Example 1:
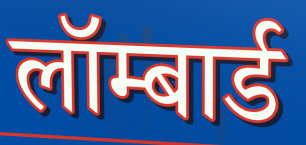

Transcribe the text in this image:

लॉम्बार्ड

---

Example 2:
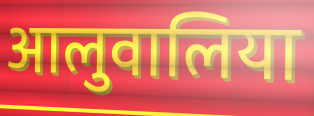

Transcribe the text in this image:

आलुवालिया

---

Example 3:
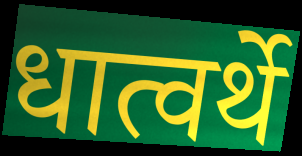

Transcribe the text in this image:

धात्वर्थे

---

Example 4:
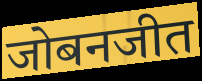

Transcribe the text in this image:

जोबनजीत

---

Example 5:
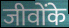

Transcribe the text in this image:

जीवोंके